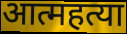
आत्महत्या